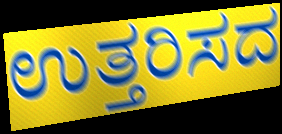
ಉತ್ತರಿಸದ